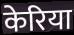
केरिया